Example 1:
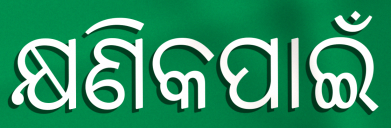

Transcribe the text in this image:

କ୍ଷଣିକପାଇଁ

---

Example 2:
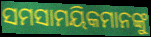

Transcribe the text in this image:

ସମସାମୟିକମାନଙ୍କୁ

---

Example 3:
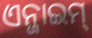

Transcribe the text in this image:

ଏନ୍ଜାଇମ୍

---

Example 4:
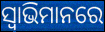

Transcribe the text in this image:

ସ୍ୱାଭିମାନରେ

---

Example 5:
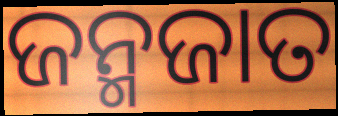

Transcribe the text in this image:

ଜନ୍ମଜାତ